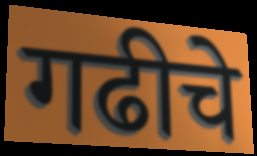
गढीचे